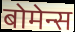
बोमेन्स